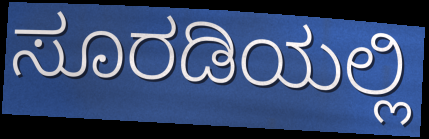
ಸೂರಡಿಯಲ್ಲಿ